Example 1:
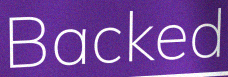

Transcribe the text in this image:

Backed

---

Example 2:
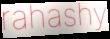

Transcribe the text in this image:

rahashy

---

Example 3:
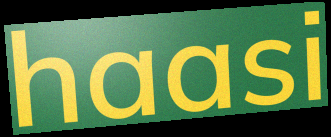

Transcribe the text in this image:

haasi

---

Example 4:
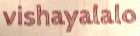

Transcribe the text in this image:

vishayalalo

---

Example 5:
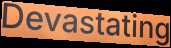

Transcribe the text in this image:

Devastating